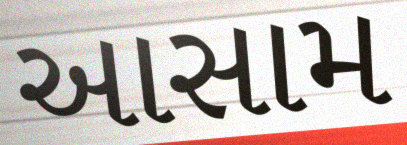
આસામ